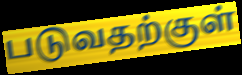
படுவதற்குள்